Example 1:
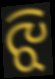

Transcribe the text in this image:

ଝି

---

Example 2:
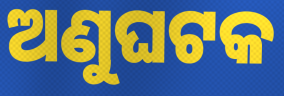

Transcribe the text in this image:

ଅଣୁଘଟକ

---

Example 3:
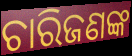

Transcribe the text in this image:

ଚାରିଜଣଙ୍କ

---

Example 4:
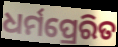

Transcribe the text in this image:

ଧର୍ମପ୍ରେରିତ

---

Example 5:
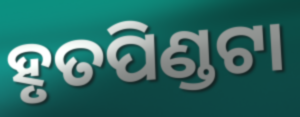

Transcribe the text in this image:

ହୃତପିଣ୍ଡଟା